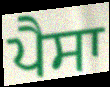
ਪੈਸਾ